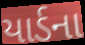
યાર્ડના